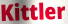
Kittler